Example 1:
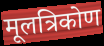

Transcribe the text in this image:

मूलत्रिकोण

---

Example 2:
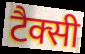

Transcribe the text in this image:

टैक्‍सी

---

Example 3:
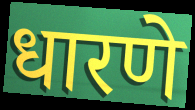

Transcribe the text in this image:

धारणे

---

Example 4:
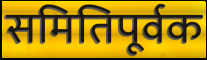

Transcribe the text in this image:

समितिपूर्वक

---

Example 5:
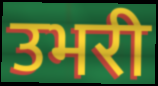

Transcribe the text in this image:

उभरी